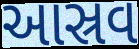
આસ્રવ